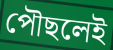
পৌছলেই